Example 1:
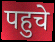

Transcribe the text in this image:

पहुचे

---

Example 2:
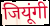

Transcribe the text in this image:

जियूंगी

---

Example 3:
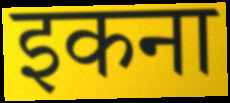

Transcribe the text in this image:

इकना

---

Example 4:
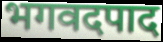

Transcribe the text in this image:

भगवदपाद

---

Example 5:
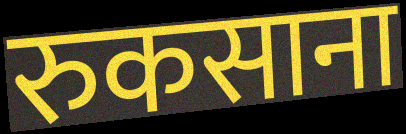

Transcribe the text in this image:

रुकसाना